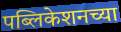
पब्लिकेशनच्या